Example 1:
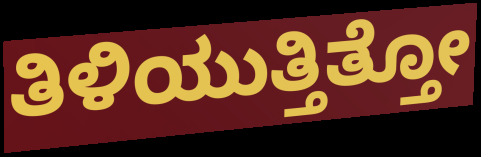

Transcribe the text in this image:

ತಿಳಿಯುತ್ತಿತ್ತೋ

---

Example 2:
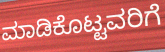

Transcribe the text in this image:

ಮಾಡಿಕೊಟ್ಟವರಿಗೆ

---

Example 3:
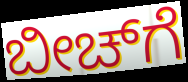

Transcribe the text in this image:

ಬೀಚ್‌ಗೆ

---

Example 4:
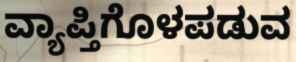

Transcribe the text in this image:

ವ್ಯಾಪ್ತಿಗೊಳಪಡುವ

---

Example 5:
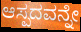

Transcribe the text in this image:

ಆಸ್ಪದವನ್ನೇ